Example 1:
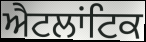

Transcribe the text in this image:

ਐਟਲਾਂਟਿਕ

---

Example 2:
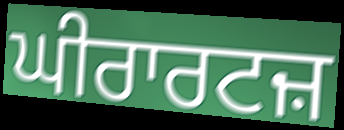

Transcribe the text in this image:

ਘੀਰਾਰਟਜ਼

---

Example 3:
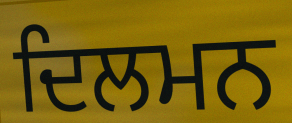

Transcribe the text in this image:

ਦਿਲਮਨ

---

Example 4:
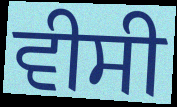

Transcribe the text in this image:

ਵੀਸੀ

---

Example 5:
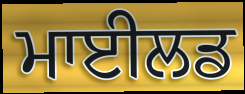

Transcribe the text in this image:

ਮਾਈਲਡ